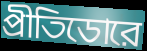
প্রীতিডোরে